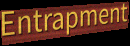
Entrapment